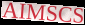
AIMSCS